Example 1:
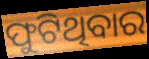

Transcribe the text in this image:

ଫୁଟିଥିବାର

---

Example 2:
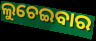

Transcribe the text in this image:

ଲୁଚେଇବାର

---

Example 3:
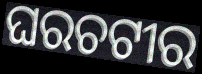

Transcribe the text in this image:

ଘରଚଟୀର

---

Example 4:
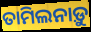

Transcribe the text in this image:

ତାମିଲନାଡ଼ୁ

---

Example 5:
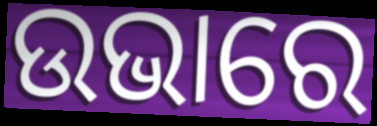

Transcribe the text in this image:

ଉଭାରେ